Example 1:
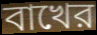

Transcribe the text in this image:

বাখের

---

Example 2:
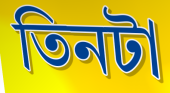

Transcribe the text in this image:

তিনটা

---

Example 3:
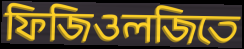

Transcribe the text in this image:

ফিজিওলজিতে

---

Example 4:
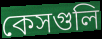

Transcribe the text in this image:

কেসগুলি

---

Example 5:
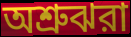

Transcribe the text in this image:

অশ্রুঝরা